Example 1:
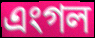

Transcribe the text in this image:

এংগল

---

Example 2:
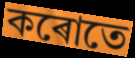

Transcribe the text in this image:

কৰোতে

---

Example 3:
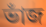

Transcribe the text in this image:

ভাঁজ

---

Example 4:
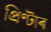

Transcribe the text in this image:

প্ৰিণ্টাৰ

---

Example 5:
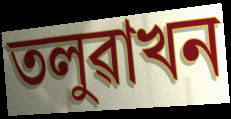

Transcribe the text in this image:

তলুৱাখন